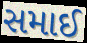
સમાઈ